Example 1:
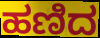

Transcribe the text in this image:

ಹಣಿದ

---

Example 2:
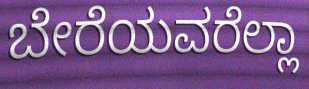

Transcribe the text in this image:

ಬೇರೆಯವರೆಲ್ಲಾ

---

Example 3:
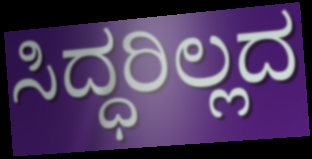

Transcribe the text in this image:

ಸಿದ್ಧರಿಲ್ಲದ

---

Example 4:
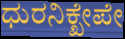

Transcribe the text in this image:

ಧುರನಿಕ್ಖೇಪೇ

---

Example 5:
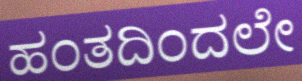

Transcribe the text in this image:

ಹಂತದಿಂದಲೇ